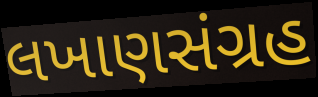
લખાણસંગ્રહ